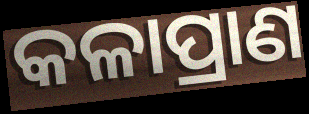
କଳାପ୍ରାଣ